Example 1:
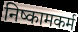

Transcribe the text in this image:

निष्कामकर्म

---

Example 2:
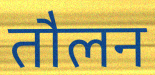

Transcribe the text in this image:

तौलन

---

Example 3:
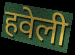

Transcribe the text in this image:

हवेली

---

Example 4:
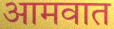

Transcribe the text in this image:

आमवात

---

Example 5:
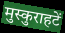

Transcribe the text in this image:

मुस्कुराहटें